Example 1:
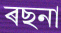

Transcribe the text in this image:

ৰছনা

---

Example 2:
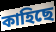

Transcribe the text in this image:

কাহিছে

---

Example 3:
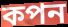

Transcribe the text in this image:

কপন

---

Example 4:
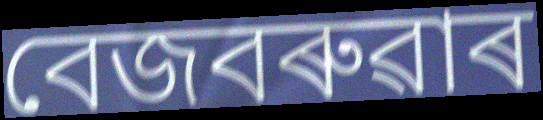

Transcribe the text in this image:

বেজবৰুৱাৰ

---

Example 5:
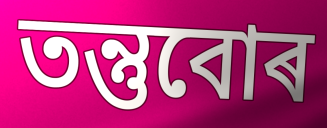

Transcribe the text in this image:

তন্তুবোৰ